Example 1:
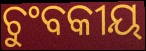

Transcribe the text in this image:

ଚୁଂବକୀୟ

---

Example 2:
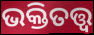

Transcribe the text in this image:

ଭକ୍ତିତତ୍ତ୍ୱ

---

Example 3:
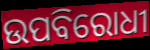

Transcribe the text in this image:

ଉପବିରୋଧୀ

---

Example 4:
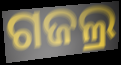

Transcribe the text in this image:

ଗଜଲ୍ର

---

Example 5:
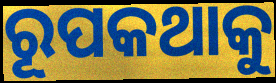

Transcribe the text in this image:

ରୂପକଥାକୁ